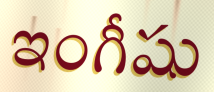
ఇంగీషు